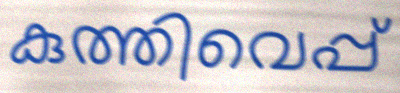
കുത്തിവെപ്പ്